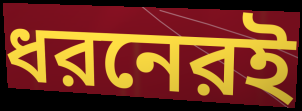
ধরনেরই